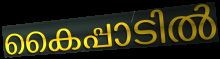
കൈപ്പാടിൽ